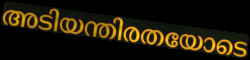
അടിയന്തിരതയോടെ